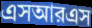
এসআরএস